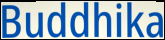
Buddhika